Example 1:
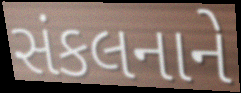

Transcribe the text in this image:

સંકલનાને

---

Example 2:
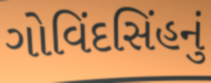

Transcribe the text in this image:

ગોવિંદસિંહનું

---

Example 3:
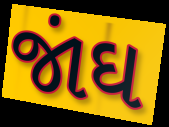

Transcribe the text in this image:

જાંઘ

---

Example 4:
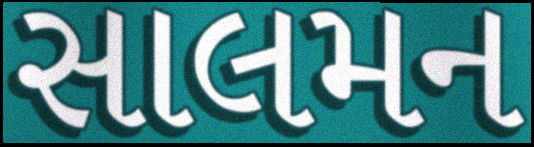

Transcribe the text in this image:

સાલમન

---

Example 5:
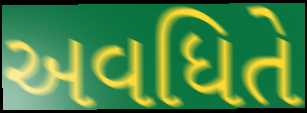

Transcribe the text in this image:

અવધિતે